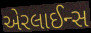
એરલાઈન્સ